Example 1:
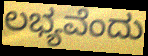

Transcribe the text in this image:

ಲಭ್ಯವೆಂದು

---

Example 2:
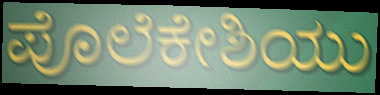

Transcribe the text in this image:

ಪೊಲೆಕೇಶಿಯು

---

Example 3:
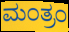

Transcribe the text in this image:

ಮಂತ್ರಂ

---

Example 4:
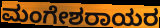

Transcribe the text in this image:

ಮಂಗೇಶರಾಯರ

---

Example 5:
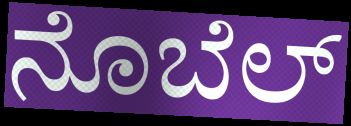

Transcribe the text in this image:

ನೊಬೆಲ್